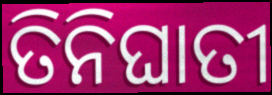
ତିନିଘାତୀ